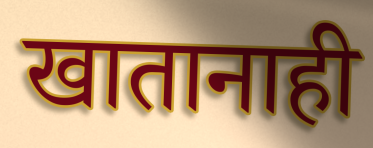
खातानाही